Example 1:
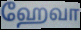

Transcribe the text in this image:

ஹேவா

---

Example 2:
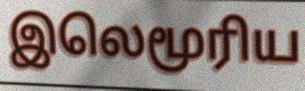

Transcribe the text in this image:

இலெமூரிய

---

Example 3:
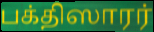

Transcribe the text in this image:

பக்திஸாரர்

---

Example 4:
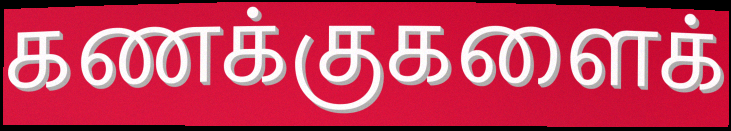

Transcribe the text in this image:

கணக்குகளைக்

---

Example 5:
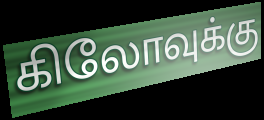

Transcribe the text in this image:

கிலோவுக்கு